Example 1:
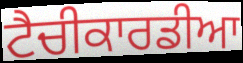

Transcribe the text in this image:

ਟੈਚੀਕਾਰਡੀਆ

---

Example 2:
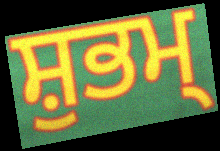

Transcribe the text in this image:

ਸ਼ੁਭਮ੍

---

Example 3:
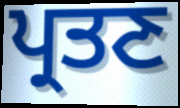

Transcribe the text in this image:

ਪ੍ਰਤਣ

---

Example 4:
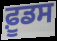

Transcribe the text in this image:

ਫ਼ੂਡਸ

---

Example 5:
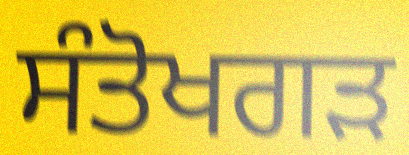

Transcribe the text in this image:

ਸੰਤੋਖਗੜ